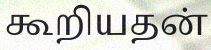
கூறியதன்